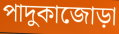
পাদুকাজোড়া